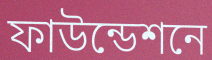
ফাউন্ডেশনে